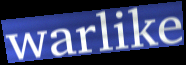
warlike